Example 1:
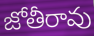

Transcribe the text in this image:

జోతీరావు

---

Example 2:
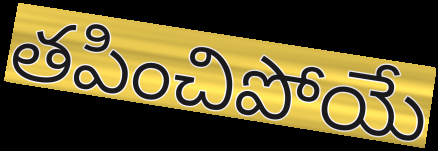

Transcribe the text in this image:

తపించిపోయే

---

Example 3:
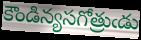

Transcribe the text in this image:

కౌండిన్యసగోత్రుఁడు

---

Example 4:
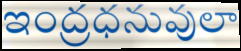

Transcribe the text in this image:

ఇంద్రధనువులా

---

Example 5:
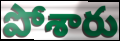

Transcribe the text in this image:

పోశారు